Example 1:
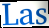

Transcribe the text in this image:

Las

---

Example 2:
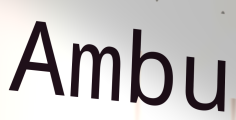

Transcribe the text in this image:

Ambu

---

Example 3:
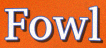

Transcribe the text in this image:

Fowl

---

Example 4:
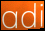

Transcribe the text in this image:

adi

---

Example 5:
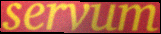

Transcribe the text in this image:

servum